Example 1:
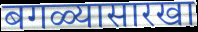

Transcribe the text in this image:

बगळ्यासारखा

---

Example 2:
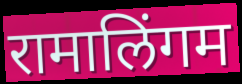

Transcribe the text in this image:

रामालिंगम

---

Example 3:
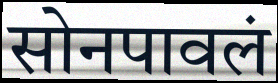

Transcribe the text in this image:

सोनपावलं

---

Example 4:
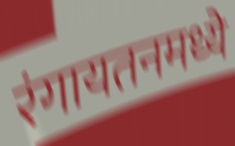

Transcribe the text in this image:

रंगायतनमध्ये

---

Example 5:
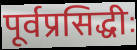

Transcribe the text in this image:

पूर्वप्रसिद्धीः